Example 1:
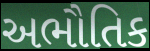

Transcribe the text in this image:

અભૌતિક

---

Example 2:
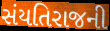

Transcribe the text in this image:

સંયતિરાજની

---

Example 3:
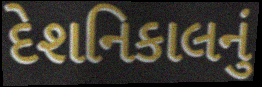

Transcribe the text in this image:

દેશનિકાલનું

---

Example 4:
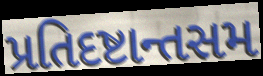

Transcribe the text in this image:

પ્રતિદષ્ટાન્તસમ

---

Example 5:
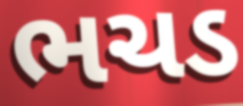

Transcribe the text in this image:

ભચડ